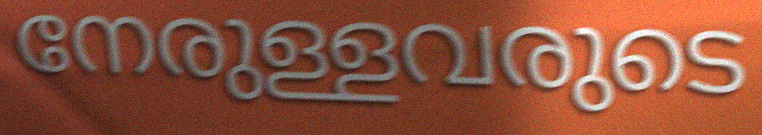
നേരുള്ളവരുടെ